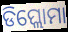
ଡିପ୍ଲୋମା